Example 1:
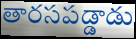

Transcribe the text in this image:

తారసపడ్డాడు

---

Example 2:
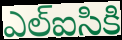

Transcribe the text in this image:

ఎల్ఐసికి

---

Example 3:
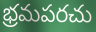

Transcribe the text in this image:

భ్రమపరచు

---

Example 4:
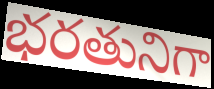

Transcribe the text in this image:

భరతునిగా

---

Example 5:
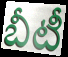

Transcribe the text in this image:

బీటీ